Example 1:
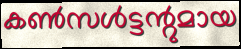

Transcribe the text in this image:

കൺസൾട്ടന്റുമായ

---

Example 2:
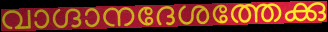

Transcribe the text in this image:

വാഗ്ദാനദേശത്തേക്കു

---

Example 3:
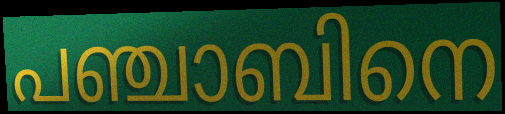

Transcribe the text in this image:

പഞ്ചാബിനെ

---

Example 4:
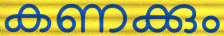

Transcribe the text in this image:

കണക്കും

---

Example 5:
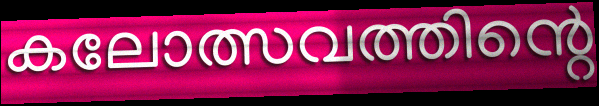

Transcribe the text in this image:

കലോത്സവത്തിന്റെ